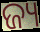
ଜ୍ୟ